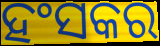
ହଂସକର